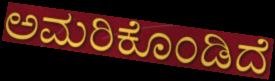
ಅಮರಿಕೊಂಡಿದೆ